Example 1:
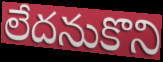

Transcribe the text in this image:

లేదనుకొని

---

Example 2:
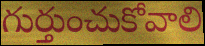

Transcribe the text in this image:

గుర్తుంచుకోవాలి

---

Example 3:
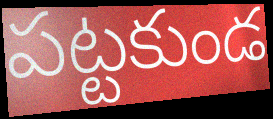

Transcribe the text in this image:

పట్టకుండ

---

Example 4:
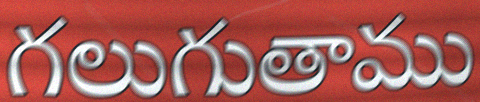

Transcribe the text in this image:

గలుగుతాము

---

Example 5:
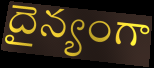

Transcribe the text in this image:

దైన్యంగా